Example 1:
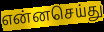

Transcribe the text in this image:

என்னசெய்து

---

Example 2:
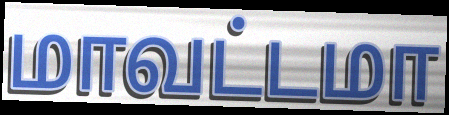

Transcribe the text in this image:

மாவட்டமா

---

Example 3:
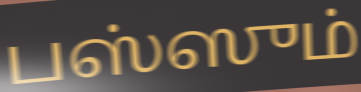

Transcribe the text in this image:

பஸ்ஸும்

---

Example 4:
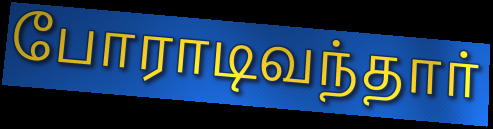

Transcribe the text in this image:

போராடிவந்தார்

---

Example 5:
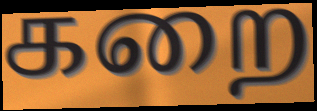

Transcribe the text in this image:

கறை